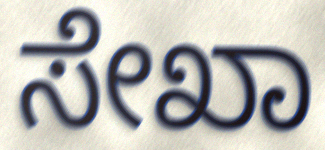
ಸೇಖಾ